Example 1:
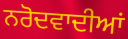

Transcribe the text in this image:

ਨਰੋਦਵਾਦੀਆਂ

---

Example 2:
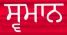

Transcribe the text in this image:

ਸ੍ਵਮਾਨ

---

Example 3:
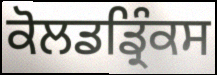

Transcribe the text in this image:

ਕੋਲਡਡ੍ਰਿੰਕਸ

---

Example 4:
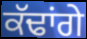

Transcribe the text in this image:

ਕੱਢਾਂਗੇ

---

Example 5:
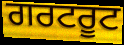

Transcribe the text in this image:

ਗਰਟਰੂਟ